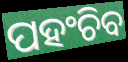
ପହଂଚିବ